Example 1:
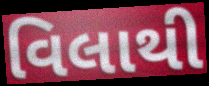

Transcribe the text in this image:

વિલાથી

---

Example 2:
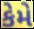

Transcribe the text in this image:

કેમે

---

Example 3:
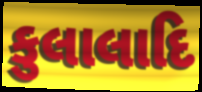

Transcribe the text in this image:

કુલાલાદિ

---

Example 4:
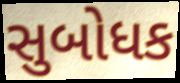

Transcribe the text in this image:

સુબોધક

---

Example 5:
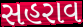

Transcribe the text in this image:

સહરાવ